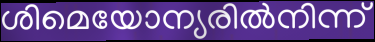
ശിമെയോന്യരിൽനിന്ന്